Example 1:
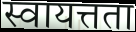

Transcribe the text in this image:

स्वायत्तता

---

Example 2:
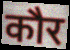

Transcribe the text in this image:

कौर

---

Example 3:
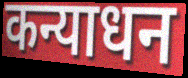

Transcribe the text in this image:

कन्याधन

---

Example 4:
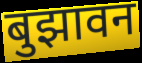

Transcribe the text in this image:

बुझावन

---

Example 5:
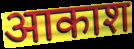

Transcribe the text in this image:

आकाश